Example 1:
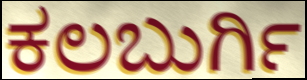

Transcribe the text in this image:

ಕಲಬುರ್ಗಿ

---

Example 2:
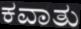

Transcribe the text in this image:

ಕವಾತು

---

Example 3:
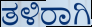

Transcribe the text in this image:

ತಳಿರಾಗಿ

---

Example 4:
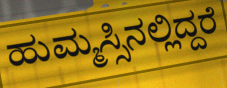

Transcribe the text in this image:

ಹುಮ್ಮಸ್ಸಿನಲ್ಲಿದ್ದರೆ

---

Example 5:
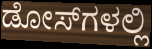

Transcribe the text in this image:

ಡೋಸ್‌ಗಳಲ್ಲಿ